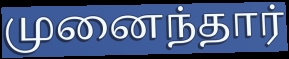
முனைந்தார்